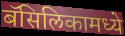
बॅसिलिकामध्ये